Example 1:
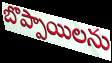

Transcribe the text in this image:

బొప్పాయిలను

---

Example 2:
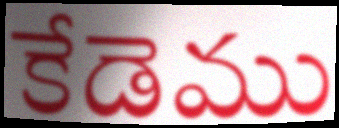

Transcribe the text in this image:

కేడెము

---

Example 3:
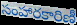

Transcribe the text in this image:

సంహారకారిణీ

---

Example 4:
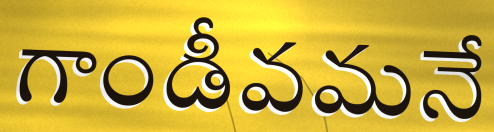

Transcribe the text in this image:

గాండీవమనే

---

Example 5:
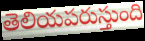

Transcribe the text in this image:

తెలియపరుస్తుంది